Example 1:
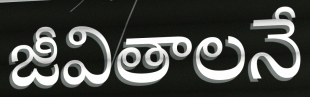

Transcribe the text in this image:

జీవితాలనే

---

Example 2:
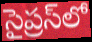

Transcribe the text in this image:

సైప్రస్‌లో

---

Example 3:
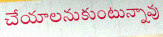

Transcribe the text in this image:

చేయాలనుకుంటున్నావు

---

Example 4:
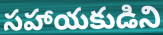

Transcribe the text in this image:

సహాయకుడిని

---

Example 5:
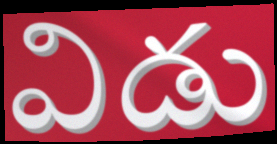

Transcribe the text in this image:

విడు